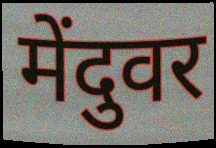
मेंदुवर